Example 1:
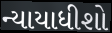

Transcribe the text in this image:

ન્યાયાધીશો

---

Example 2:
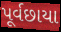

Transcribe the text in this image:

પૂર્વછાયા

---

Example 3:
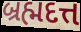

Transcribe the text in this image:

બ્રહ્મદત્ત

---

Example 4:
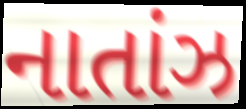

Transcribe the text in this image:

નાતાંઝ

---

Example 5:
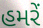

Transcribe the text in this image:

હમરેં